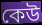
কেউ